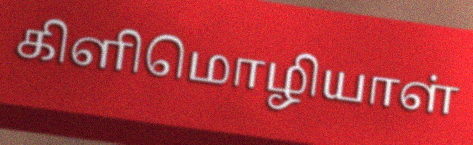
கிளிமொழியாள்